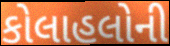
કોલાહલોની